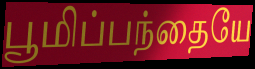
பூமிப்பந்தையே